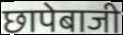
छापेबाजी